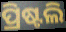
ପ୍ରିଷ୍ଟଲି